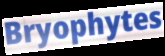
Bryophytes